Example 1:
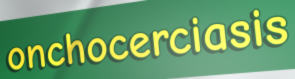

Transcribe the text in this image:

onchocerciasis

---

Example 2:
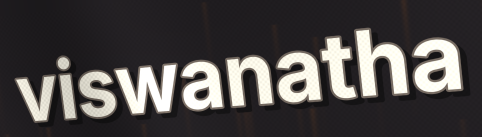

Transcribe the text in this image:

viswanatha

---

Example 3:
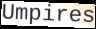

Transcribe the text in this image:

Umpires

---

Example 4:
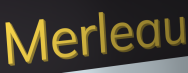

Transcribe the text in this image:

Merleau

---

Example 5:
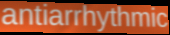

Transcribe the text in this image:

antiarrhythmic